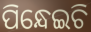
ପିନ୍ଧେଇଚି